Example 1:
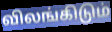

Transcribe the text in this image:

விலங்கிடும்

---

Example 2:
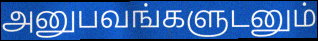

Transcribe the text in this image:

அனுபவங்களுடனும்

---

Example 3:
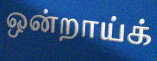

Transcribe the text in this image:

ஒன்றாய்க்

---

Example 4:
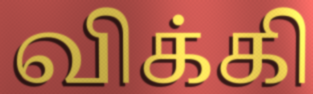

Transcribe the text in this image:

விக்கி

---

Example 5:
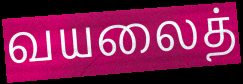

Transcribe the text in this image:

வயலைத்